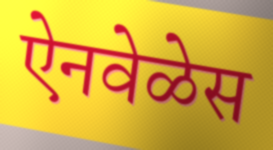
ऐनवेळेस